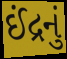
ઈંદ્રનું